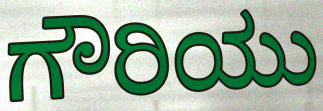
ಗೌರಿಯು